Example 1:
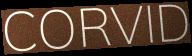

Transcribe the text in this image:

CORVID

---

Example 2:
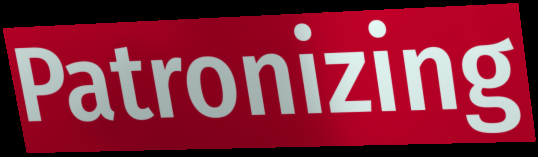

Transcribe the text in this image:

Patronizing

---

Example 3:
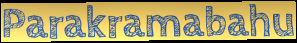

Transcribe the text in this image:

Parakramabahu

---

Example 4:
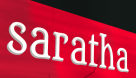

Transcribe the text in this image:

saratha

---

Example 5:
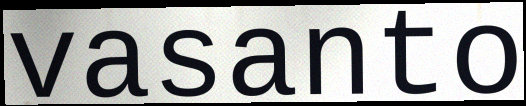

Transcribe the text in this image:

vasanto